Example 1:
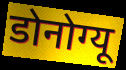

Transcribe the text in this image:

डोनोग्यू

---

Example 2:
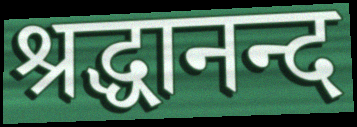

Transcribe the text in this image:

श्रद्धानन्द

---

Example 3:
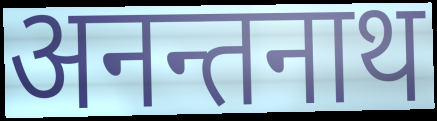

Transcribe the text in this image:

अनन्तनाथ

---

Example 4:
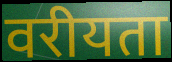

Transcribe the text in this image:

वरीयता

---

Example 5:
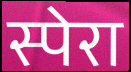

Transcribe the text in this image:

स्पेरा